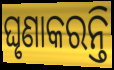
ଘୃଣାକରନ୍ତି